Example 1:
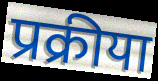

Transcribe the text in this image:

प्रक्रीया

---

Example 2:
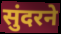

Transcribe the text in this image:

सुंदरने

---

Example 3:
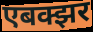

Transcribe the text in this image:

एबक्झर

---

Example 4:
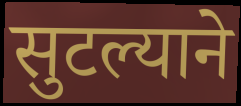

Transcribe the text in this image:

सुटल्याने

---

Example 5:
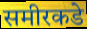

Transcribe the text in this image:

समीरकडे